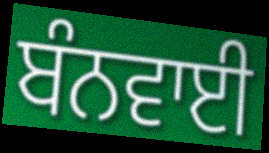
ਬੰਨਵਾਈ